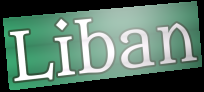
Liban